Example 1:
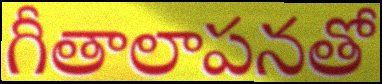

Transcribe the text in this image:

గీతాలాపనతో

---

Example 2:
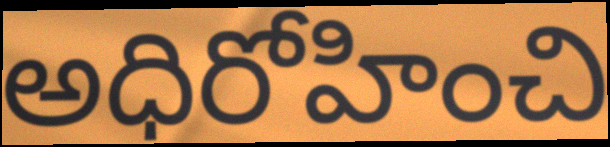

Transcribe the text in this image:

అధిరోహించి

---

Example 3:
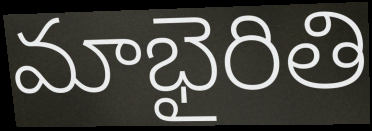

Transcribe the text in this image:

మాభైరితి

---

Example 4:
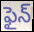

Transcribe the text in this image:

ఫైన్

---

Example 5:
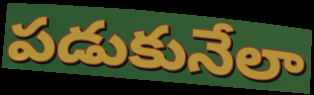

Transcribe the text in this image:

పడుకునేలా